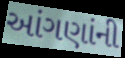
આંગણાંની